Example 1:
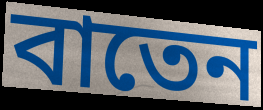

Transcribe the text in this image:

বাতেন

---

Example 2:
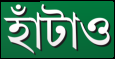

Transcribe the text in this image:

হাঁটাও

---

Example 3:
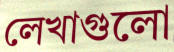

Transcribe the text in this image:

লেখাগুলো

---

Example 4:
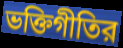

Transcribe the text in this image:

ভক্তিগীতির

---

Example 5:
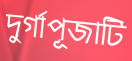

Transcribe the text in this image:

দুর্গাপূজাটি